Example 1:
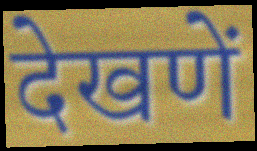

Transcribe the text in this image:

देखणें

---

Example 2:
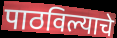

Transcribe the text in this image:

पाठविल्याचे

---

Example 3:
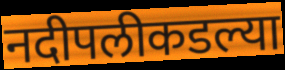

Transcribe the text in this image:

नदीपलीकडल्या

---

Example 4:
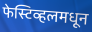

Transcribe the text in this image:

फेस्टिव्हलमधून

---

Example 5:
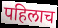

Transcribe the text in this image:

पहिलाच